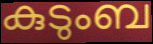
കുടുംബ